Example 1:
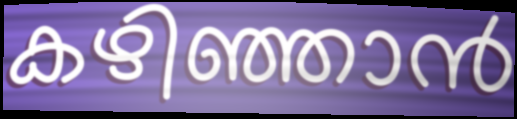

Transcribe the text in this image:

കഴിഞ്ഞാൻ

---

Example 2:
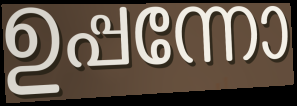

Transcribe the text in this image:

ഉപ്പന്നോ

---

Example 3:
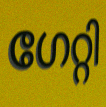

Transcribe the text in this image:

ഗേറ്റി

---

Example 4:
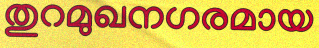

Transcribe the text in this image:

തുറമുഖനഗരമായ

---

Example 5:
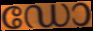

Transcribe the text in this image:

ഡോ